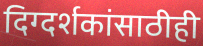
दिग्दर्शकांसाठीही